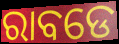
ରାବଡେ